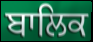
ਬਾਲਿਕ